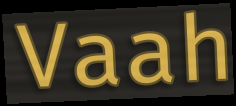
Vaah